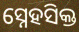
ସ୍ନେହସିକ୍ତ